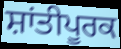
ਸ਼ਾਂਤੀਪੂਰਕ